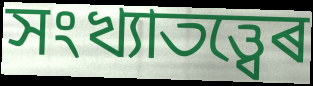
সংখ্যাতত্ত্বেৰ